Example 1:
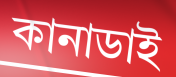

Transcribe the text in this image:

কানাডাই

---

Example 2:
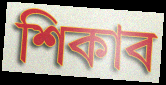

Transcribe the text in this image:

শিকাব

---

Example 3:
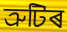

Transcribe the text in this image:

ত্ৰুটিৰ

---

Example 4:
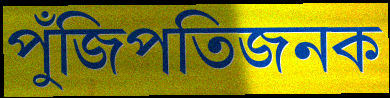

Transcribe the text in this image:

পুঁজিপতিজনক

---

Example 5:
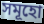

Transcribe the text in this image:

সমূহো